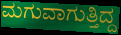
ಮಗುವಾಗುತ್ತಿದ್ದ